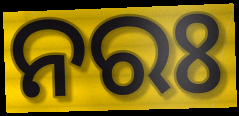
ନରଃ